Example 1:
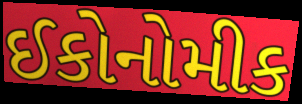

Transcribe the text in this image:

ઈકોનોમીક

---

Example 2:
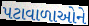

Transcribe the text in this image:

પટાવાળાઓને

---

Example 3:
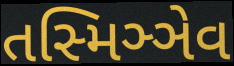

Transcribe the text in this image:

તસ્મિઞ્ઞેવ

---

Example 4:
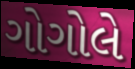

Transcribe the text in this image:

ગોગોલે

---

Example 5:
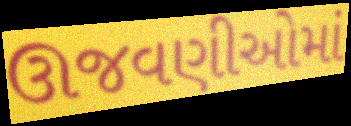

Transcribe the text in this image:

ઊજવણીઓમાં